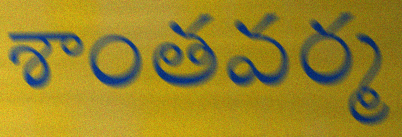
శాంతవర్మ